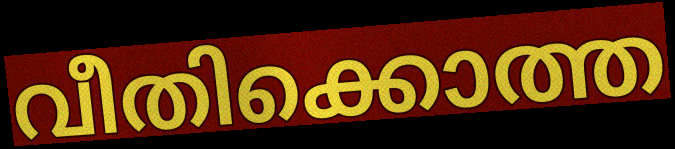
വീതിക്കൊത്ത